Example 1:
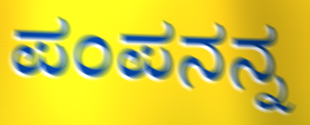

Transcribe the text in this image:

ಪಂಪನನ್ನ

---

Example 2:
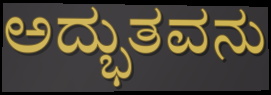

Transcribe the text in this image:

ಅದ್ಭುತವನು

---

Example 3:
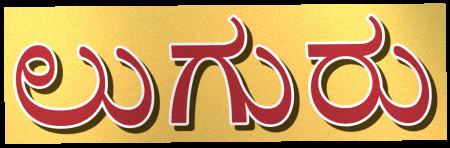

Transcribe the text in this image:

ಲುಗುರು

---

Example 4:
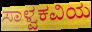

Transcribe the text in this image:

ಸಾಳ್ವಕವಿಯ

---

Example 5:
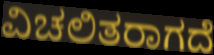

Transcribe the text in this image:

ವಿಚಲಿತರಾಗದೆ